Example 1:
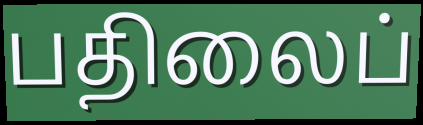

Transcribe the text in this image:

பதிலைப்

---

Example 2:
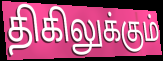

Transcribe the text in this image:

திகிலுக்கும்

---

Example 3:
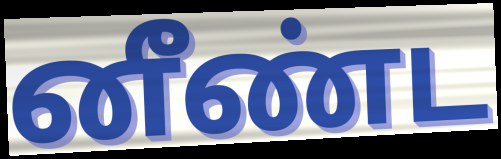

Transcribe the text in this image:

னீண்ட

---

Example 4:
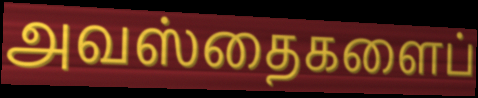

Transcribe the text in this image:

அவஸ்தைகளைப்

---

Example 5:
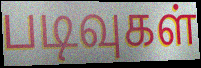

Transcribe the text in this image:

படிவுகள்